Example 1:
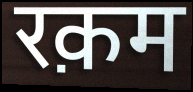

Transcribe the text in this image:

रक़म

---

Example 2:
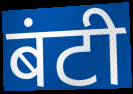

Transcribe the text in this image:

बंटी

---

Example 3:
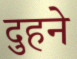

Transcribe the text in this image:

दुहने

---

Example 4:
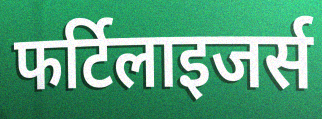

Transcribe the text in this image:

फर्टिलाइजर्स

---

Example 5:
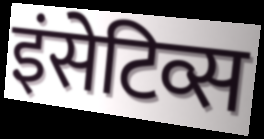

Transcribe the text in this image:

इंसेटिव्स